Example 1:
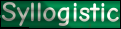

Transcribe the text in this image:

Syllogistic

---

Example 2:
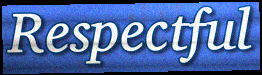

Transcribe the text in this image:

Respectful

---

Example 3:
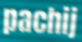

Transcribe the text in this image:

pachij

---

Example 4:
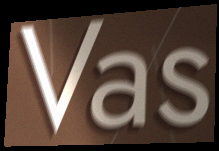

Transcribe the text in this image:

Vas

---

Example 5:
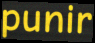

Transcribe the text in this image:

punir